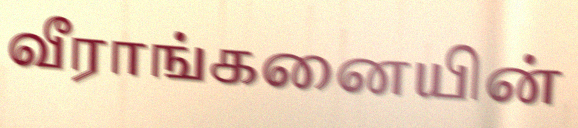
வீராங்கனையின்